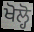
ਖੋਲ੍ਹੋ